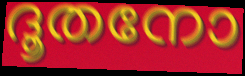
ദൂതനോ